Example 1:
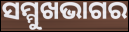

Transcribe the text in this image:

ସମ୍ମୁଖଭାଗର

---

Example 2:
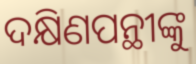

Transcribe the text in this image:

ଦକ୍ଷିଣପନ୍ଥୀଙ୍କୁ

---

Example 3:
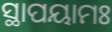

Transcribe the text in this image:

ସ୍ଥାପୟାମଃ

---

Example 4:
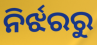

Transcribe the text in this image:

ନିର୍ଝରରୁ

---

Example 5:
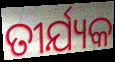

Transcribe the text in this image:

ତୀର୍ଯ୍ୟକ